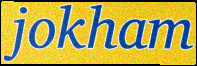
jokham